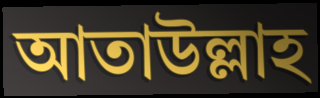
আতাউল্লাহ